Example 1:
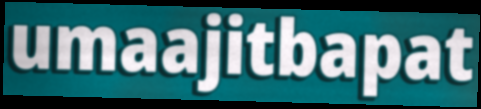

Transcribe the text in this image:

umaajitbapat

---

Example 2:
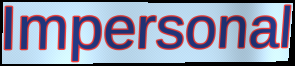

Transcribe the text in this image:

Impersonal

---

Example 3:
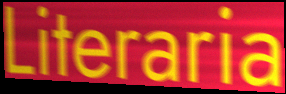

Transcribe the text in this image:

Literaria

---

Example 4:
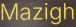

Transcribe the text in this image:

Mazigh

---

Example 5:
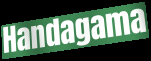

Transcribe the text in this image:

Handagama